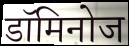
डॉमिनोज